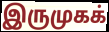
இருமுகக்